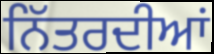
ਨਿੱਤਰਦੀਆਂ